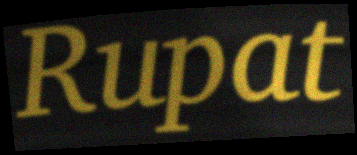
Rupat